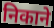
निकाने